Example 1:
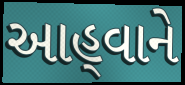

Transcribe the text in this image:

આહ્‌વાને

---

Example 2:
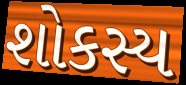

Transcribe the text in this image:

શોકસ્ય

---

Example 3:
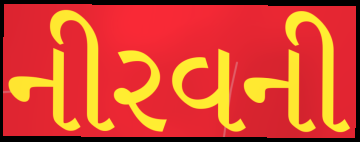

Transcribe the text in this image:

નીરવની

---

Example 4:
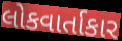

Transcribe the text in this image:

લોકવાર્તાકાર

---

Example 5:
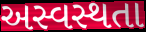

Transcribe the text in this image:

અસ્વસ્થતા